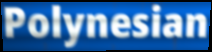
Polynesian